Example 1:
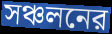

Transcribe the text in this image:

সঞ্চলনের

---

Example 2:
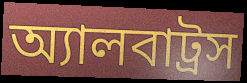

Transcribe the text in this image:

অ্যালবাট্রস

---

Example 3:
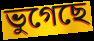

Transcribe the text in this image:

ভুগেছে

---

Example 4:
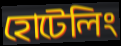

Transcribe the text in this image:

হোটেলিং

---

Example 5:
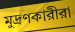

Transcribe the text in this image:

মুদ্রণকারীরা